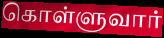
கொள்ளுவார்